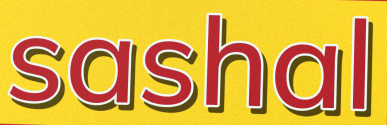
sashal